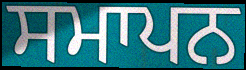
ਸਮਾਪਨ